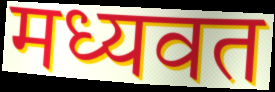
मध्यवत